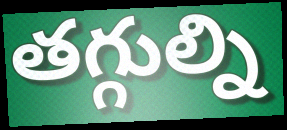
తగ్గుల్ని